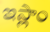
ఇస్లాం